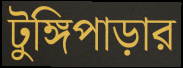
টুঙ্গিপাড়ার